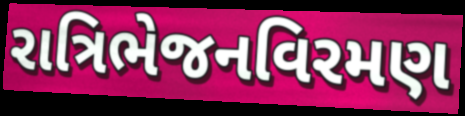
રાત્રિભેજનવિરમણ